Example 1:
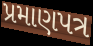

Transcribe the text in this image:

પ્રમાણપત્ર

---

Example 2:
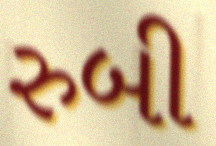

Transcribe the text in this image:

રુબી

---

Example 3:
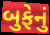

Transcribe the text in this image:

બુફેનું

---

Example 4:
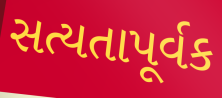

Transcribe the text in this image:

સત્યતાપૂર્વક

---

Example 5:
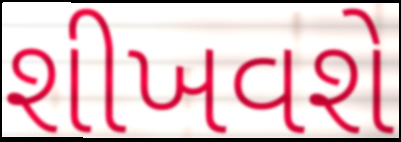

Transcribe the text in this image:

શીખવશે